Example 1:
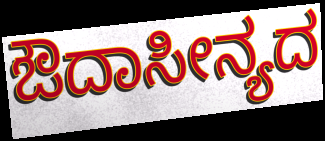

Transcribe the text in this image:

ಔದಾಸೀನ್ಯದ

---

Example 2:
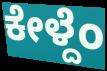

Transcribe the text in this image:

ಕೇಳ್ದೆಂ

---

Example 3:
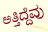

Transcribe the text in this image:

ಅತ್ತಿದ್ದೆವು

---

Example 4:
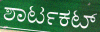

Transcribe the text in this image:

ಶಾರ್ಟಕಟ್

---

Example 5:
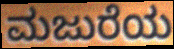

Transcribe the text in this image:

ಮಜುರೆಯ